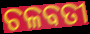
ଚଳବତୀ